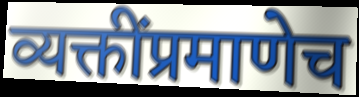
व्यक्तींप्रमाणेच